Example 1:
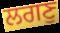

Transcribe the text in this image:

ਲਗਣੁ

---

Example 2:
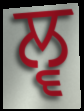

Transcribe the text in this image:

ਲ੍ਵ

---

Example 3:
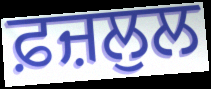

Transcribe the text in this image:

ਫ਼ਜ਼ਲੁਲ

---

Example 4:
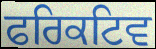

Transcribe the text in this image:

ਫਰਿਕਟਿਵ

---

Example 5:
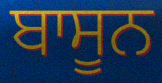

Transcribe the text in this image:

ਬਾਸੂਨ